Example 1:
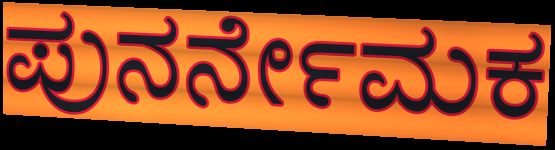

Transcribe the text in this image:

ಪುನರ್ನೇಮಕ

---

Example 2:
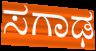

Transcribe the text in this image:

ಸಗಾಢ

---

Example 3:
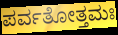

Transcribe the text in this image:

ಪರ್ವತೋತ್ತಮಃ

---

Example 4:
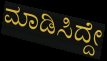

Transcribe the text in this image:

ಮಾಡಿಸಿದ್ದೇ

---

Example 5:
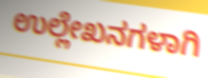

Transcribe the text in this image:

ಉಲ್ಲೇಖನಗಳಾಗಿ